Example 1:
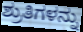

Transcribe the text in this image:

ಶ್ರುತಿಗಳನ್ನು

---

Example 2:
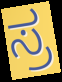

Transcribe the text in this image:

ಸ್ರ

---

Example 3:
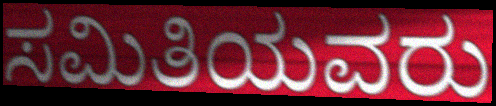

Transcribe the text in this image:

ಸಮಿತಿಯವರು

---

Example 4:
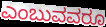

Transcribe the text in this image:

ಎಂಬುವವರೂ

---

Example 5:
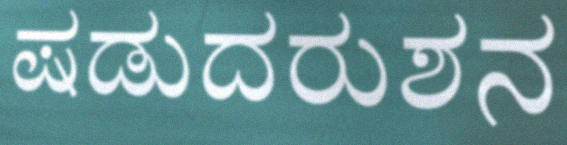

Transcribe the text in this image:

ಷಡುದರುಶನ